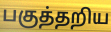
பகுத்தறிய